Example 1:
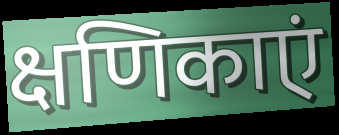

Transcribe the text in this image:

क्षणिकाएं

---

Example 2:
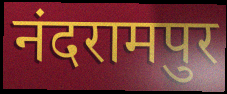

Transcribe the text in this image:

नंदरामपुर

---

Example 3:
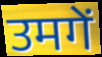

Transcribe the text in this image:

उमगें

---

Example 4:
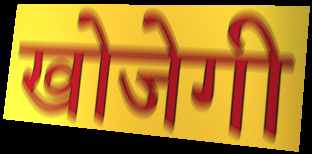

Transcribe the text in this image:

खोजेगी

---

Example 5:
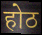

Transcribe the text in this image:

होठ